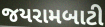
જયરામબાટી